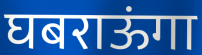
घबराऊंगा